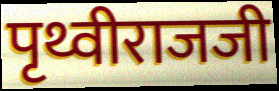
पृथ्वीराजजी